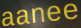
aanee